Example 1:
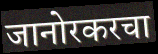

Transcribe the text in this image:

जानोरकरचा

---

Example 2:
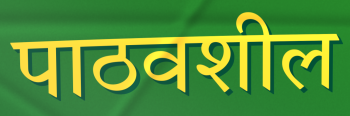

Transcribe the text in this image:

पाठवशील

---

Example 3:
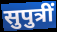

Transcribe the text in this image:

सुपुत्रीं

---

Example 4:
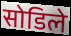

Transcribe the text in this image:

सोडिले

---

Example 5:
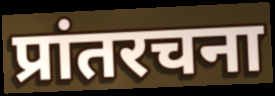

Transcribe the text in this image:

प्रांतरचना